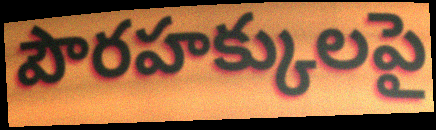
పౌరహక్కులపై